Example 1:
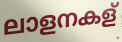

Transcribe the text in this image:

ലാളനകള്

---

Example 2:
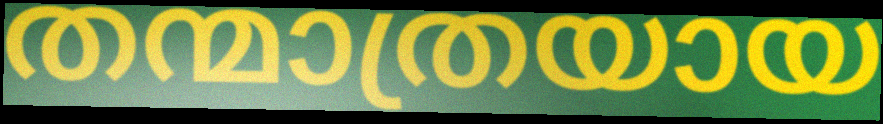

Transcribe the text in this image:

തന്മാത്രയായ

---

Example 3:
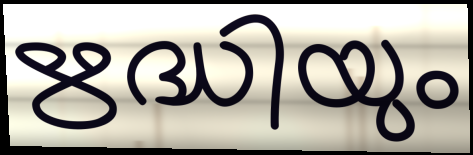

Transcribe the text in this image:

ഋദ്ധിയും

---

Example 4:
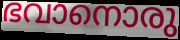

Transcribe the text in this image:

ഭവാനൊരു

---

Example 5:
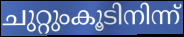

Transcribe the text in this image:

ചുറ്റുംകൂടിനിന്ന്